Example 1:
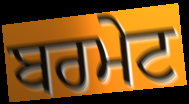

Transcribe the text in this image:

ਬਰਮੇਟ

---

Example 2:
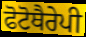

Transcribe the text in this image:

ਫੋਟੋਥੈਰੇਪੀ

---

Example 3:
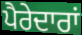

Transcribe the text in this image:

ਪੈਰੇਦਾਰਾਂ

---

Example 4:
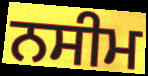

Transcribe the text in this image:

ਨਸੀਮ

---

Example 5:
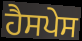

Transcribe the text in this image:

ਹੈਸਪੇਸ